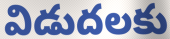
విడుదలకు